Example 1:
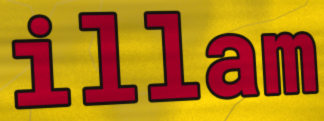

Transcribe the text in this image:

illam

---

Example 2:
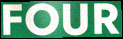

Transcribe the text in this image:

FOUR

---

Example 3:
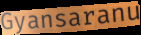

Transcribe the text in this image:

Gyansaranu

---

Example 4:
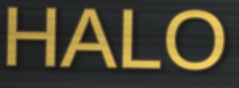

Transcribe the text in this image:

HALO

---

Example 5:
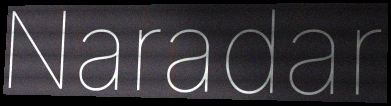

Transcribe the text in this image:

Naradar